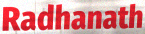
Radhanath